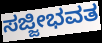
ಸಜ್ಜೀಭವತ